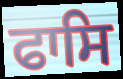
ਫਾਸਿ